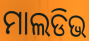
ମାଲଡିଭ